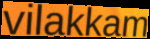
vilakkam